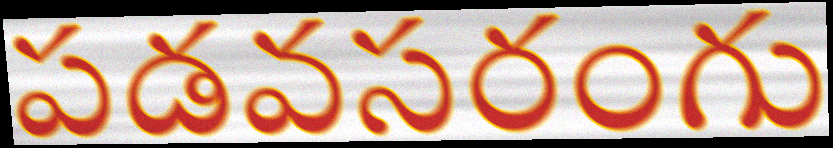
పడవసరంగు